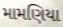
મામણિયા